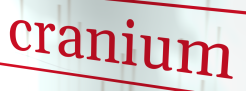
cranium